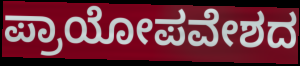
ಪ್ರಾಯೋಪವೇಶದ